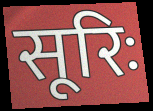
सूरिः